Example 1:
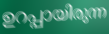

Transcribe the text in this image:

ഉറപ്പായിരുന്ന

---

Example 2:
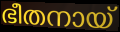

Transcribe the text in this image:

ഭീതനായ്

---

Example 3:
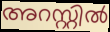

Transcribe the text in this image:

അറസ്റ്റിൽ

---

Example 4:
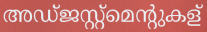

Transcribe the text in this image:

അഡ്ജസ്റ്റ്മെന്റുകള്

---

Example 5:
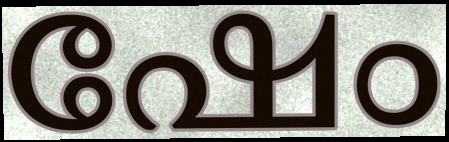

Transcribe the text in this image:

ഷേം